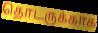
தொடருக்காக